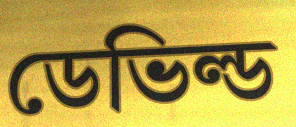
ডেভিল্ড